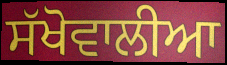
ਸੱਖੋਵਾਲੀਆ